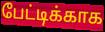
பேட்டிக்காக